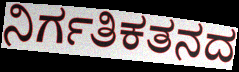
ನಿರ್ಗತಿಕತನದ